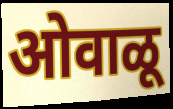
ओवाळू